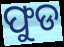
ଫୁଡ